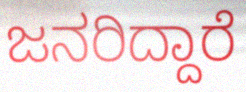
ಜನರಿದ್ದಾರೆ